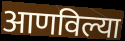
आणविल्या